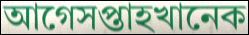
আগেসপ্তাহখানেক